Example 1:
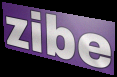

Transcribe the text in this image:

zibe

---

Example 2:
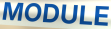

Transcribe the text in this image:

MODULE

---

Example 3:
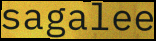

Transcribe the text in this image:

sagalee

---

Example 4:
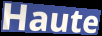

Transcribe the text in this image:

Haute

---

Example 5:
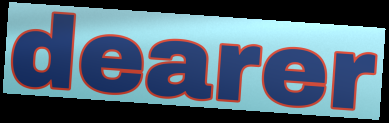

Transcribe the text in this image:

dearer